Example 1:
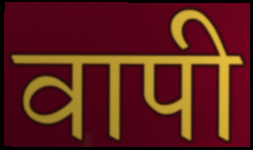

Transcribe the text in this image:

वापी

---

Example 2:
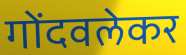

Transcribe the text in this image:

गोंदवलेकर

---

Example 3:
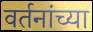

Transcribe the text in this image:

वर्तनांच्या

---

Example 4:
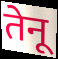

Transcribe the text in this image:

तेनू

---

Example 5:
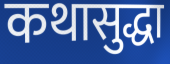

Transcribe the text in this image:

कथासुद्धा